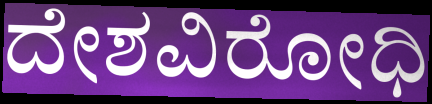
ದೇಶವಿರೋಧಿ